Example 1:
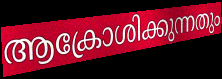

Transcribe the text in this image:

ആക്രോശിക്കുന്നതും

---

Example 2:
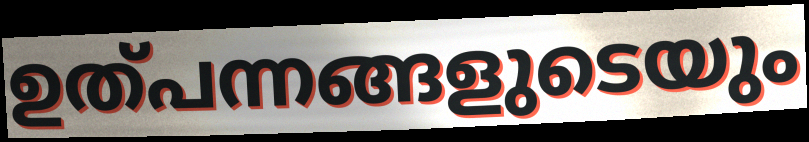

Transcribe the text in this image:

ഉത്പന്നങ്ങളുടെയും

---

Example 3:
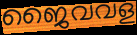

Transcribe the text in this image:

ജൈവവള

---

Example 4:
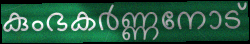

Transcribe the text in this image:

കുംഭകർണ്ണനോട്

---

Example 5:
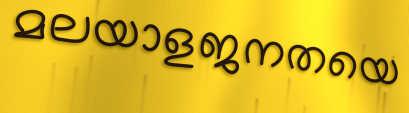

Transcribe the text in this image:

മലയാളജനതയെ